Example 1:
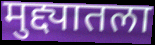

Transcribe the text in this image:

मुद्द्यातला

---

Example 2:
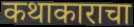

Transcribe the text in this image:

कथाकाराचा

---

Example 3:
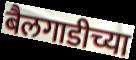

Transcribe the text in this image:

बैलगाडीच्या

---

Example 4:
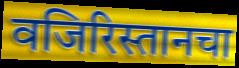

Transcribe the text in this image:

वजिरिस्तानचा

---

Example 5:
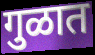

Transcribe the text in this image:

गुळात